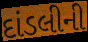
દાંડલીની